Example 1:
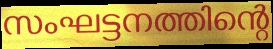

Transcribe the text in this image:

സംഘട്ടനത്തിന്റെ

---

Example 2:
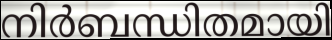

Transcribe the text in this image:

നിർബന്ധിതമായി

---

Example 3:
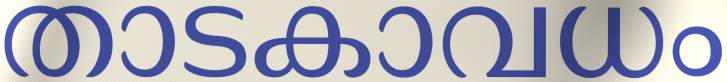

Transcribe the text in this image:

താടകാവധം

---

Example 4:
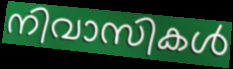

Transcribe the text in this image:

നിവാസികൾ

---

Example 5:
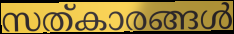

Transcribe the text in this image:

സത്കാരങ്ങൾ